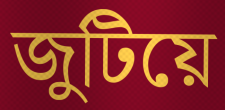
জুটিয়ে